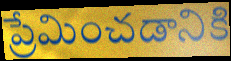
ప్రేమించడానికి